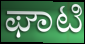
ಘಾಟಿ